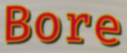
Bore